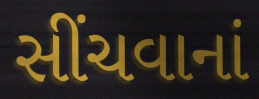
સીંચવાનાં